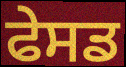
ਫੇਸਡ